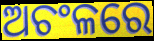
ଅଚଂଳରେ